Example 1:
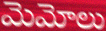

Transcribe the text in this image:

మెమోలు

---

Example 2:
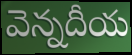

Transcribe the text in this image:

వెన్నదీయ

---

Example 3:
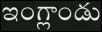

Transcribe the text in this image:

ఇంగ్లాండు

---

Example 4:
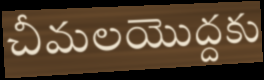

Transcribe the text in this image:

చీమలయొద్దకు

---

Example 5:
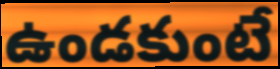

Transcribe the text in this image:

ఉండకుంటే